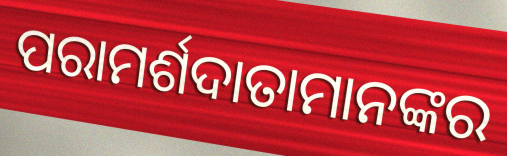
ପରାମର୍ଶଦାତାମାନଙ୍କର